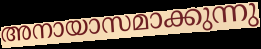
അനായാസമാക്കുന്നു